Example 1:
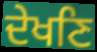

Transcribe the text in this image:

ਦੇਖਣਿ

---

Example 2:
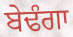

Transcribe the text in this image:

ਬੇਢੰਗਾ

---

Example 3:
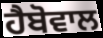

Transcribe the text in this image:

ਹੈਬੋਵਾਲ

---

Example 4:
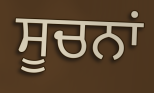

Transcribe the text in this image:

ਸੂਚਨਾਂ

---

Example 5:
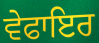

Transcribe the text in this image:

ਵੇਫਾਇਰ